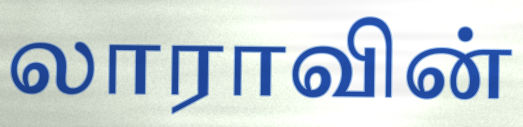
லாராவின்